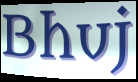
Bhuj